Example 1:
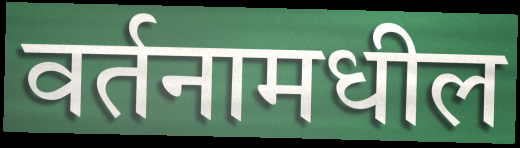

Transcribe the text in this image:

वर्तनामधील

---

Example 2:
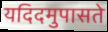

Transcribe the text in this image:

यदिदमुपासते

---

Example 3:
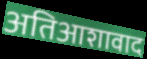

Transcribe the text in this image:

अतिआशावाद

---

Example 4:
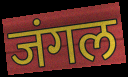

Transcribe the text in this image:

जंगल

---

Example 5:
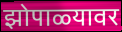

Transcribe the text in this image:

झोपाळ्यावर